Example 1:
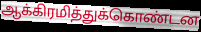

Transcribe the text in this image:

ஆக்கிரமித்துக்கொண்டன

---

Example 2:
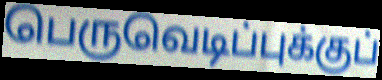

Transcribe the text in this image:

பெருவெடிப்புக்குப்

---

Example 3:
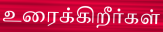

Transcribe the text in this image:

உரைக்கிறீர்கள்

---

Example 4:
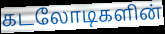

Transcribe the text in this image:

கடலோடிகளின்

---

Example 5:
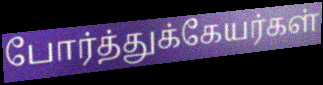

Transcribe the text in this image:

போர்த்துக்கேயர்கள்